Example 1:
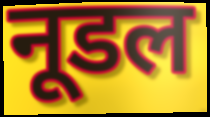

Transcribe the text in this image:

नूडल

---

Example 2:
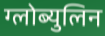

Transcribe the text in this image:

ग्लोब्युलिन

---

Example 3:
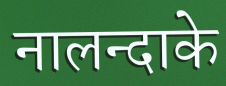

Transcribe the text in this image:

नालन्दाके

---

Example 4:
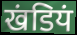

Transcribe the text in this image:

खंडियं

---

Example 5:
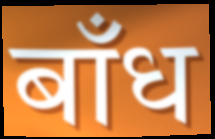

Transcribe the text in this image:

बाँध